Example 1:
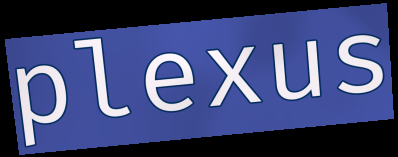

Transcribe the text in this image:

plexus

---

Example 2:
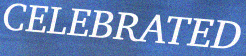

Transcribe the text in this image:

CELEBRATED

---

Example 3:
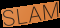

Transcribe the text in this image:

SLAM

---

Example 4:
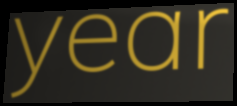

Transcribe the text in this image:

year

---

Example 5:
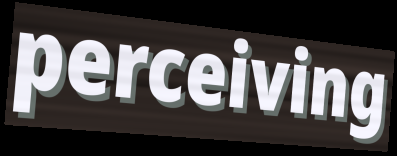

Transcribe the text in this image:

perceiving